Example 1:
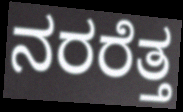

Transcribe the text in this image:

ನರರೆತ್ತ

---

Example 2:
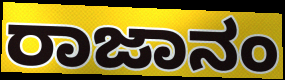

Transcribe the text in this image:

ರಾಜಾನಂ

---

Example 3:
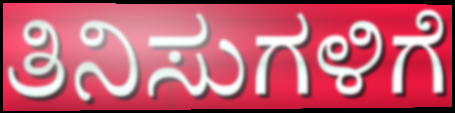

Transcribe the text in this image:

ತಿನಿಸುಗಳಿಗೆ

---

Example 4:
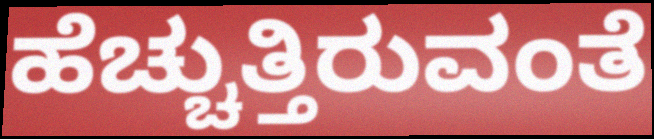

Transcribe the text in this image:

ಹೆಚ್ಚುತ್ತಿರುವಂತೆ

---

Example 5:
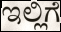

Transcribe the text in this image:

ಇಲ್ಲಿಗೆ